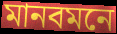
মানবমনে